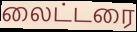
லைட்டரை